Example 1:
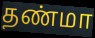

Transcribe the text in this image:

தண்மா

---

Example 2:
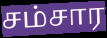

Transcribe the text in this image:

சம்சார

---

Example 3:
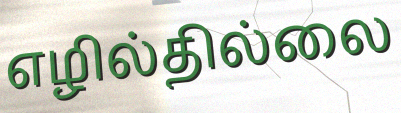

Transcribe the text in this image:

எழில்தில்லை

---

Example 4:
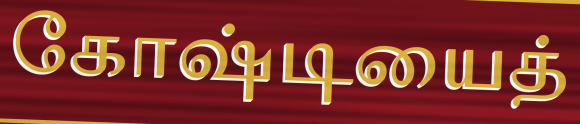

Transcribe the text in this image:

கோஷ்டியைத்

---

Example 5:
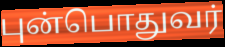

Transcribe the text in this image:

புன்பொதுவர்